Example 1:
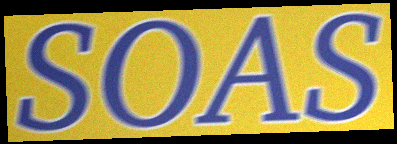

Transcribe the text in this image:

SOAS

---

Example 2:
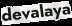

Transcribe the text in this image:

devalaya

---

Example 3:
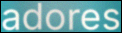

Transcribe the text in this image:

adores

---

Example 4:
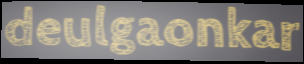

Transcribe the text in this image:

deulgaonkar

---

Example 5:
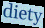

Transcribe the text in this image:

diety